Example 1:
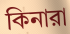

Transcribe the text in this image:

কিনারা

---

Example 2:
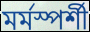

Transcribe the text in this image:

মর্মস্পর্শী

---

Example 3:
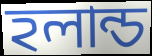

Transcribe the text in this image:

হলান্ড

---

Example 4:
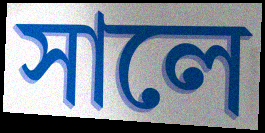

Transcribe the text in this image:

সালে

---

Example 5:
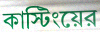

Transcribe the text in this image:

কাস্টিংয়ের